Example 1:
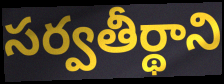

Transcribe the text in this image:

సర్వతీర్థాని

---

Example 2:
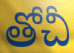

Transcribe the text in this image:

తోచీ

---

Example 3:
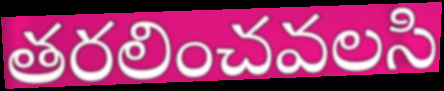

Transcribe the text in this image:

తరలించవలసి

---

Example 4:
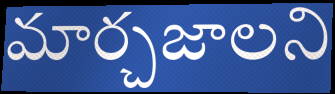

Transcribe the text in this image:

మార్చజాలని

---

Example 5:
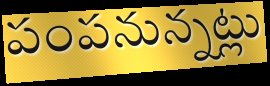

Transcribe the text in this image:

పంపనున్నట్లు